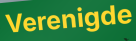
Verenigde